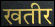
खतीर